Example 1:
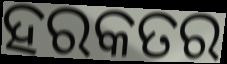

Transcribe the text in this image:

ହରକତର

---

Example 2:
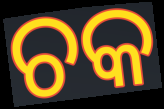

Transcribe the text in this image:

ଚକ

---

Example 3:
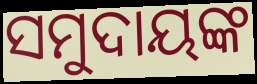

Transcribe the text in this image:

ସମୁଦାୟଙ୍କ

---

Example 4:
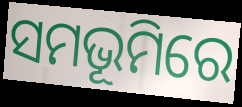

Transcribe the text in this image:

ସମଭୂମିରେ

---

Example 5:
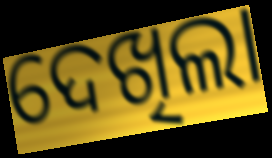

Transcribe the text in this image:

ଦେଖିଲା